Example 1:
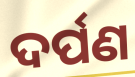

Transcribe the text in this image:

ଦର୍ପଣ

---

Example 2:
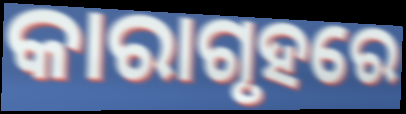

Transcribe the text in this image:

କାରାଗୃହରେ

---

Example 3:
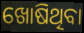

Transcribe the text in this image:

ଖୋଷିଥିବା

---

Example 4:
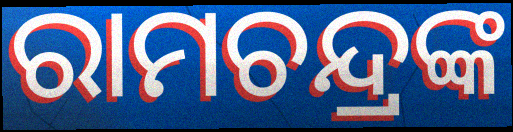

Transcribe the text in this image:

ରାମଚନ୍ଦ୍ରଙ୍କ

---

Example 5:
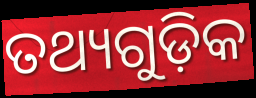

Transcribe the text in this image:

ତଥ୍ୟଗୁଡ଼ିକ